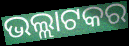
ଭଲ୍ଲାଟକର